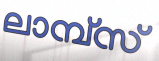
ലാമ്പ്സ്